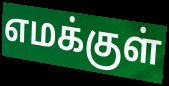
எமக்குள்